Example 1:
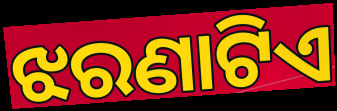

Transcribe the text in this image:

ଝରଣାଟିଏ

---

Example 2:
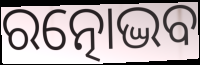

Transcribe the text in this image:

ରତ୍ନୋଦ୍ଭବ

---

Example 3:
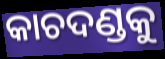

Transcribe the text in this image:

କାଚଦଣ୍ଡକୁ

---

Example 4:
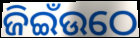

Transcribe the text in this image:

ଜିଇଁଉଠେ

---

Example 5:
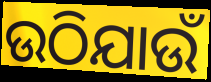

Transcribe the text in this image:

ଉଠିଯାଉଁ